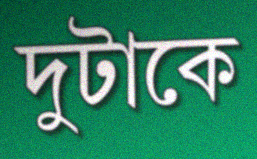
দুটাকে